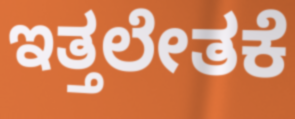
ಇತ್ತಲೇತಕೆ